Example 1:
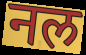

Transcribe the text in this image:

नल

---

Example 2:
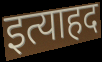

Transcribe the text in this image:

इत्याहद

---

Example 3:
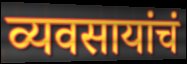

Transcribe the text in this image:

व्यवसायांचं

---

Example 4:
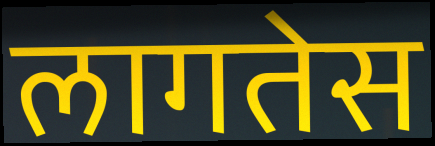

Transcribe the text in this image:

लागतेस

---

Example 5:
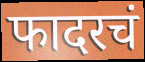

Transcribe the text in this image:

फादरचं